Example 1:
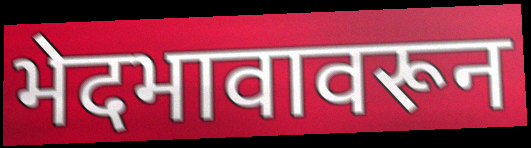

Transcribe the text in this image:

भेदभावावरून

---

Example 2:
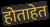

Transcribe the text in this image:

होताहेत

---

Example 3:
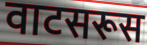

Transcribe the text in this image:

वाटसरूस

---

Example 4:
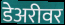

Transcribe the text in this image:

डेअरीवर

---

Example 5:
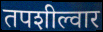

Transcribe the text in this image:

तपशील्वार